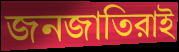
জনজাতিরাই